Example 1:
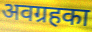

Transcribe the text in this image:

अवग्रहका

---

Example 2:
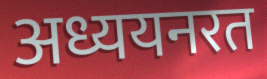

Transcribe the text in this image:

अध्ययनरत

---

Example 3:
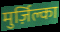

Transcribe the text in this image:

मुर्ज़िल्का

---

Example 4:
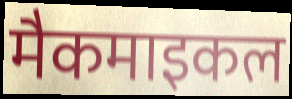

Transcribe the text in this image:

मैकमाइकल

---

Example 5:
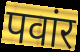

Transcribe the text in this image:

पवांर